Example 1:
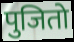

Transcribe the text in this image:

पुजितो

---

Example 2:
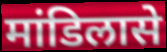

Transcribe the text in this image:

मांडिलासे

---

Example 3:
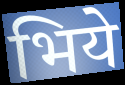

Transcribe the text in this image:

भिये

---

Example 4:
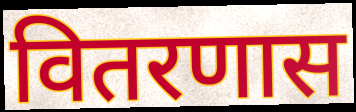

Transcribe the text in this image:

वितरणास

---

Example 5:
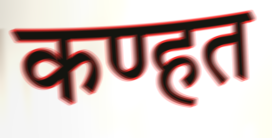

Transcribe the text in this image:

कण्हत